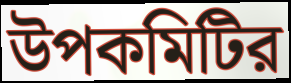
উপকমিটির